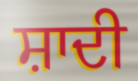
ਸ਼ਾਦੀ